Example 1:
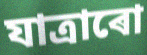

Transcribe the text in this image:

যাত্ৰাৰো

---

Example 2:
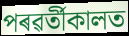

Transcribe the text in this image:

পৰৱৰ্তীকালত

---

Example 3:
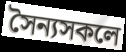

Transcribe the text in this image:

সৈন্যসকলে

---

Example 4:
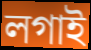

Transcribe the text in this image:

লগাই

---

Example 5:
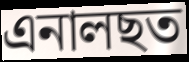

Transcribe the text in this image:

এনালছত